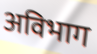
अविभाग